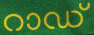
റാഡ്